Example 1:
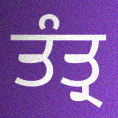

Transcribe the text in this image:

ਤੰਤ੍ਰ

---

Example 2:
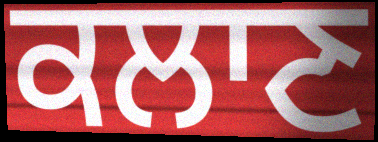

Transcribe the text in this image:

ਕਲਾਣ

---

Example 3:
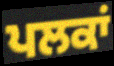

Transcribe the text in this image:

ਪਲਕਾਂ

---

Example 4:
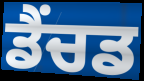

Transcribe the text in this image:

ਡੈਂਚਡ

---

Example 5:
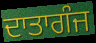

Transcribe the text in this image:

ਦਾਤਾਗੰਜ